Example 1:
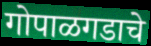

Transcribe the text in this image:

गोपाळगडाचे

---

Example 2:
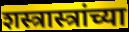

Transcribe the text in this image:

शस्त्रास्त्रांच्या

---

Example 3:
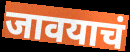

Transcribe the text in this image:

जावयाचं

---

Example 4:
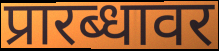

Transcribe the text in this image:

प्रारब्धावर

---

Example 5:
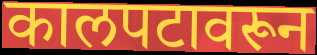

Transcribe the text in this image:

कालपटावरून